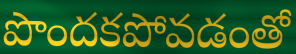
పొందకపోవడంతో